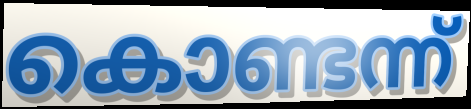
കൊണ്ടന്ന്